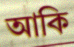
আকি